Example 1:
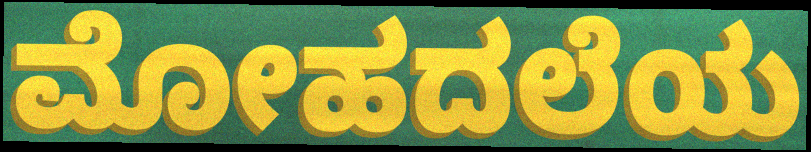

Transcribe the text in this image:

ಮೋಹದಲೆಯ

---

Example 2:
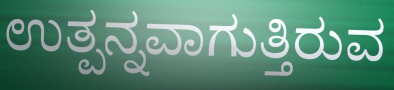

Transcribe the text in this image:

ಉತ್ಪನ್ನವಾಗುತ್ತಿರುವ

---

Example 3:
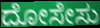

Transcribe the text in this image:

ದೋಸೇಸು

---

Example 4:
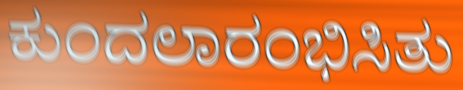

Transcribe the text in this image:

ಕುಂದಲಾರಂಭಿಸಿತು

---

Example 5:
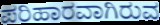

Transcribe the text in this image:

ಪರಿಹಾರವಾಗಿರುವ